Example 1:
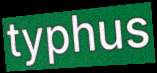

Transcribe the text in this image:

typhus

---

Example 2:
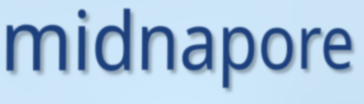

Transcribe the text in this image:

midnapore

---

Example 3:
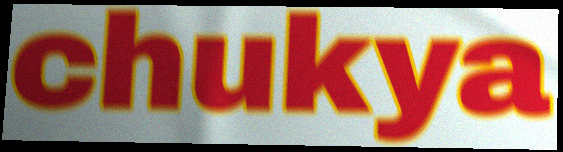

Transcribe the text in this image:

chukya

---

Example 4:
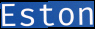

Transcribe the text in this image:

Eston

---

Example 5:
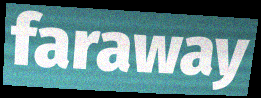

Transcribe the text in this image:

faraway